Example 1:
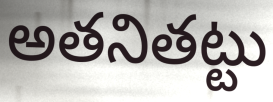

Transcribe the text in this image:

అతనితట్టు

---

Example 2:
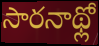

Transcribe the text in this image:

సారనాథ్లో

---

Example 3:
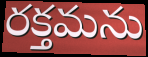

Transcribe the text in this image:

రక్తమను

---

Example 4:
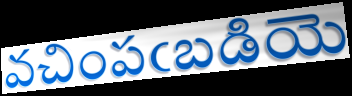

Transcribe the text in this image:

వచింపఁబడియె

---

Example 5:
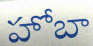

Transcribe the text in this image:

హోబా